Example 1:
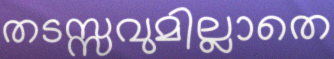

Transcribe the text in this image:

തടസ്സവുമില്ലാതെ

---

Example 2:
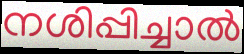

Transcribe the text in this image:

നശിപ്പിച്ചാൽ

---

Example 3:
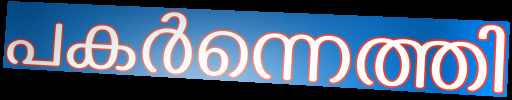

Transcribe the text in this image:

പകർന്നെത്തി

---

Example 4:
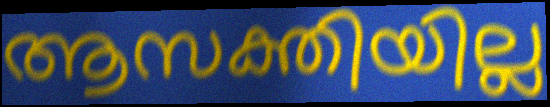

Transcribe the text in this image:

ആസക്തിയില്ല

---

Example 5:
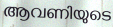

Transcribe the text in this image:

ആവണിയുടെ